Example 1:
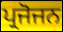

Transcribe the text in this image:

ਪ੍ਰਜੋਜਨ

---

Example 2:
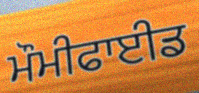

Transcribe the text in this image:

ਮੌਮੀਫਾਈਡ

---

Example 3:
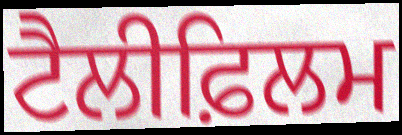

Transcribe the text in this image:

ਟੈਲੀਫ਼ਿਲਮ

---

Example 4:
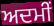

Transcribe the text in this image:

ਅਦਮੀਂ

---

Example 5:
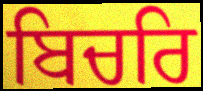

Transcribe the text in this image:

ਬਿਚਰਿ